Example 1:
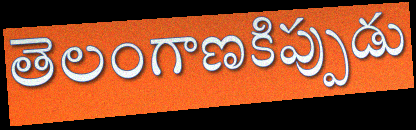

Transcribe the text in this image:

తెలంగాణకిప్పుడు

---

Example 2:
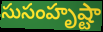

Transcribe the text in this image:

సుసంహృష్టా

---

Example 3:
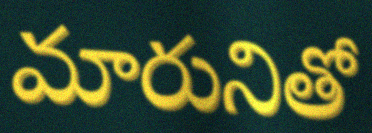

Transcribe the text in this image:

మారునితో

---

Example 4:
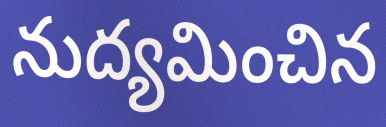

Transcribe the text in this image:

నుద్యమించిన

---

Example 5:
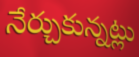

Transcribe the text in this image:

నేర్చుకున్నట్లు